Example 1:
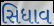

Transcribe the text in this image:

સિધાવ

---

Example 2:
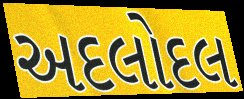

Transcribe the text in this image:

અદલોદલ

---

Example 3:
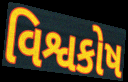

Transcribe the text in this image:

વિશ્વકોષ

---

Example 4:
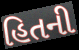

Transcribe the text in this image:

હિતની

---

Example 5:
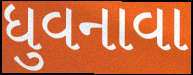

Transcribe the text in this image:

ધુવનાવા